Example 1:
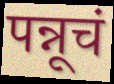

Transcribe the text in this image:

पन्नूचं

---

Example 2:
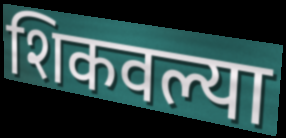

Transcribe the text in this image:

शिकवल्या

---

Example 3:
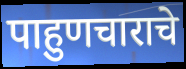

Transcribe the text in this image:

पाहुणचाराचे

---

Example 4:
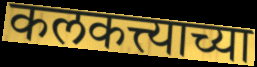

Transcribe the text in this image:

कलकत्त्याच्या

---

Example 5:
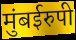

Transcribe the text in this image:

मुंबईरुपी